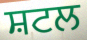
ਸ਼ਟਲ